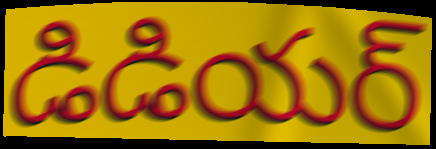
డిడియర్